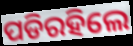
ପଡିରହିଲେ